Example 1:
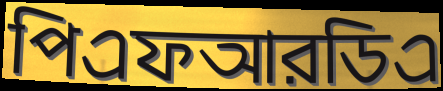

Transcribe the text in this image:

পিএফআরডিএ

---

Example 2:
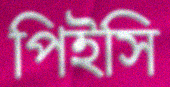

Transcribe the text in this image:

পিইসি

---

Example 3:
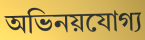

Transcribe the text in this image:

অভিনয়যোগ্য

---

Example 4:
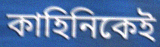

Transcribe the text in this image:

কাহিনিকেই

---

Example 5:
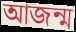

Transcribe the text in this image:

আজন্ম